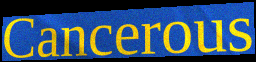
Cancerous